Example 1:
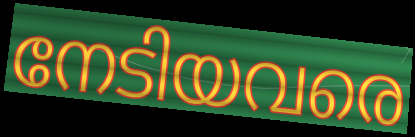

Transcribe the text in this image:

നേടിയവരെ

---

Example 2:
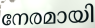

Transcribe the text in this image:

നേരമായി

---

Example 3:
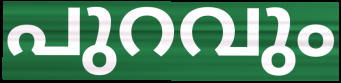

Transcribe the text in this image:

പുറവും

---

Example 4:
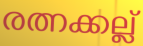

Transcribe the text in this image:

രത്നക്കല്ല്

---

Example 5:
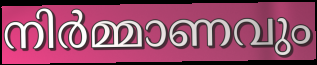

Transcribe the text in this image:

നിർമ്മാണവും